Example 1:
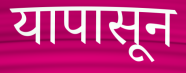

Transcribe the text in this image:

यापासून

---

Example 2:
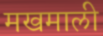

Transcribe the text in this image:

मखमाली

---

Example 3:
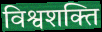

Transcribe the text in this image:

विश्वशक्ति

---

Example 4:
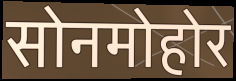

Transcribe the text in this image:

सोनमोहोर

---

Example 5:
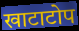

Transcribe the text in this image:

खाटाटोप